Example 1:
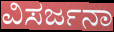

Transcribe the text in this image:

ವಿಸರ್ಜನಾ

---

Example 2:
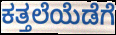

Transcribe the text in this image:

ಕತ್ತಲೆಯೆಡೆಗೆ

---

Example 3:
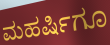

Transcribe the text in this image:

ಮಹರ್ಷಿಗೂ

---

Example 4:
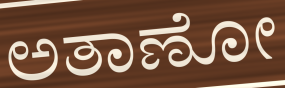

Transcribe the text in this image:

ಅತಾಣೋ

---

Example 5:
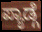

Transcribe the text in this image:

ಪ್ಯಾಡ್ಗೆ